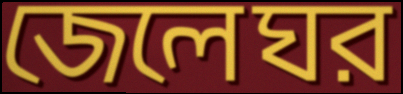
জেলেঘর